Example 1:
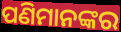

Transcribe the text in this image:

ପଣିମାନଙ୍କର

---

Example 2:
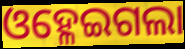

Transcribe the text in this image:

ଓହ୍ଳେଇଗଲା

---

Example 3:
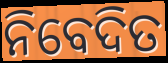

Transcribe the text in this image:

ନିବେଦିତ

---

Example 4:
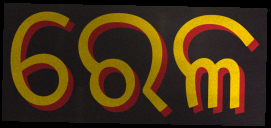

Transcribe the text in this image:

ରେଳ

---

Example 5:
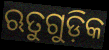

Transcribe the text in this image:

ଋତୁଗୁଡ଼ିକ